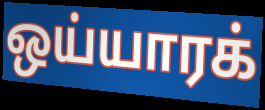
ஒய்யாரக்